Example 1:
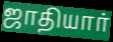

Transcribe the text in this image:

ஜாதியார்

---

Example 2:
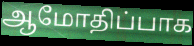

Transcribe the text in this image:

ஆமோதிப்பாக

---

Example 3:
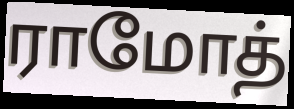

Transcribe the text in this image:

ராமோத்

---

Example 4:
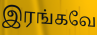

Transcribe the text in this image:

இரங்கவே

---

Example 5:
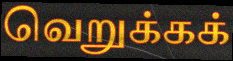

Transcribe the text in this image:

வெறுக்கக்